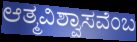
ಆತ್ಮವಿಶ್ವಾಸವೆಂಬ